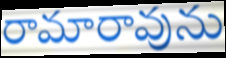
రామారావును